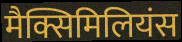
मैक्सिमिलियंस